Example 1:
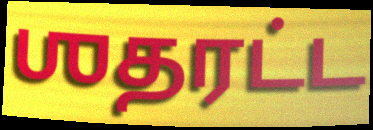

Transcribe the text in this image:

ஶதரட்ட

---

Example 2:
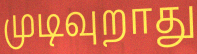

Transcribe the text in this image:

முடிவுறாது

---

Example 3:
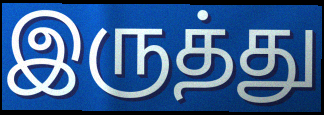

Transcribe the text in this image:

இருத்து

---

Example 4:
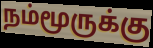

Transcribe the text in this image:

நம்மூருக்கு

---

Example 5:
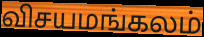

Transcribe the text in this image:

விசயமங்கலம்